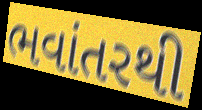
ભવાંતરથી